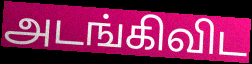
அடங்கிவிட